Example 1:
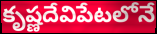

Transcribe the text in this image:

కృష్ణదేవిపేటలోనే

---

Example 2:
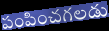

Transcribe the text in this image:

పంపించగలడు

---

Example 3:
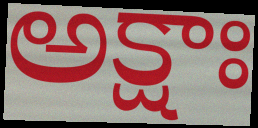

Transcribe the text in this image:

అక్షాః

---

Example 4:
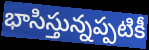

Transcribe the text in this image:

భాసిస్తున్నప్పటికీ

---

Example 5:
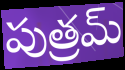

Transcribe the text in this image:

పుత్రమ్